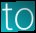
to